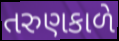
તરુણકાળે